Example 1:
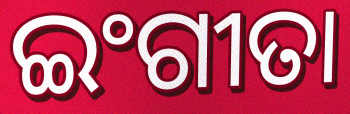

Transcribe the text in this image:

ଇଂଗୀତା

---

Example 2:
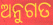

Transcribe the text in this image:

ଅନୁଗତ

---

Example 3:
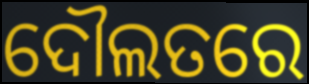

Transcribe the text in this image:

ଦୌଲତରେ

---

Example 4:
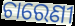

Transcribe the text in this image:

ଚାରେଣୀ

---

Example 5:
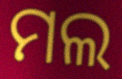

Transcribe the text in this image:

ମଲ